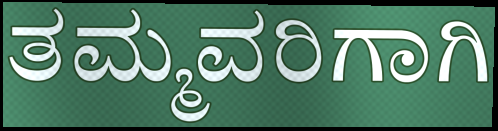
ತಮ್ಮವರಿಗಾಗಿ